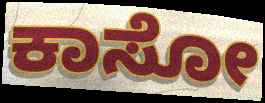
ಕಾಸೋ